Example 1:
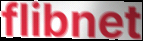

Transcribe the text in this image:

flibnet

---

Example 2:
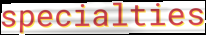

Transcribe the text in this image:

specialties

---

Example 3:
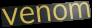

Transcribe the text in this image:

venom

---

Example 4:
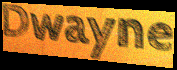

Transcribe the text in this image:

Dwayne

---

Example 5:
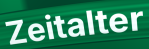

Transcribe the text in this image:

Zeitalter